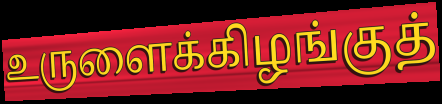
உருளைக்கிழங்குத்